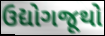
ઉદ્યોગજૂથો